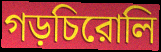
গড়চিরোলি